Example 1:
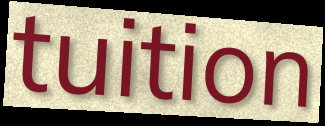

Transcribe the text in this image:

tuition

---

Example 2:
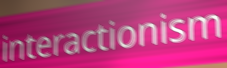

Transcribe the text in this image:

interactionism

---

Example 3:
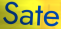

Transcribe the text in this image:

Sate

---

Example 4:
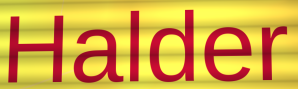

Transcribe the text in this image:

Halder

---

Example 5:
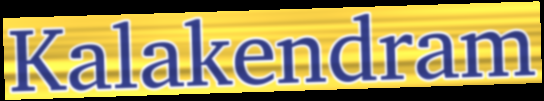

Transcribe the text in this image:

Kalakendram